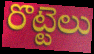
రొట్టెలు